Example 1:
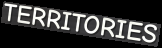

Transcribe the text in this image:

TERRITORIES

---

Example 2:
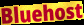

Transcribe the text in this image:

Bluehost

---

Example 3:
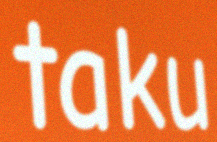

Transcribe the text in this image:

taku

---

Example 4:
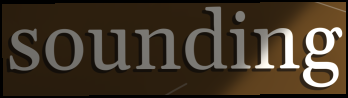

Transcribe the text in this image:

sounding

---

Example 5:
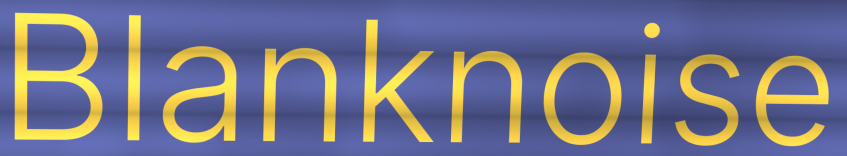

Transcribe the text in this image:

Blanknoise